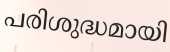
പരിശുദ്ധമായി